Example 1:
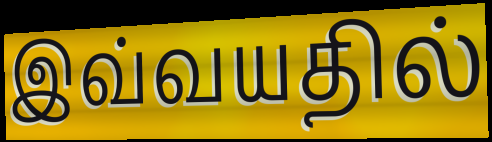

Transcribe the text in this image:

இவ்வயதில்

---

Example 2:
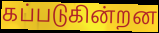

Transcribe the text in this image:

கப்படுகின்றன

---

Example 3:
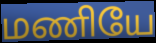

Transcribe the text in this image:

மணியே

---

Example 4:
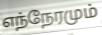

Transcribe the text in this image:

எந்நேரமும்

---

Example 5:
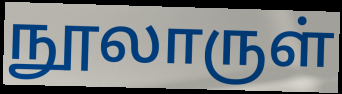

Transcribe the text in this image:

நூலாருள்